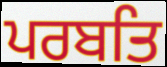
ਪਰਬਤਿ